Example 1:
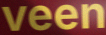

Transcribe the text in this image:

veen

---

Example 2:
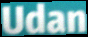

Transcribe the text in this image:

Udan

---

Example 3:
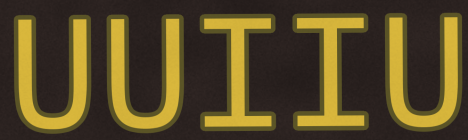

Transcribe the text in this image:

UUIIU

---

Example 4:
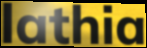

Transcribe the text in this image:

lathia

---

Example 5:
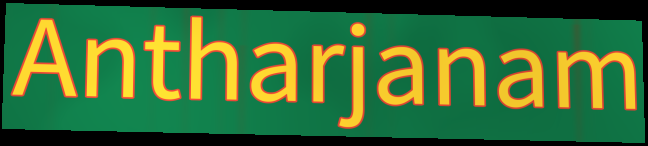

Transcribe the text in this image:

Antharjanam